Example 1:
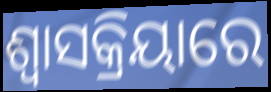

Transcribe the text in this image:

ଶ୍ୱାସକ୍ରିୟାରେ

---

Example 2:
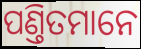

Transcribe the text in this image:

ପଣ୍ତିତମାନେ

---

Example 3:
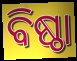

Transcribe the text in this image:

ବିଷ୍ଠା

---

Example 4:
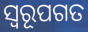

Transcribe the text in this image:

ସ୍ଵରୂପଗତ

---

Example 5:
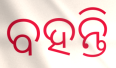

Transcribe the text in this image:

ବହନ୍ତି